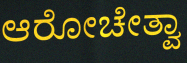
ಆರೋಚೇತ್ವಾ